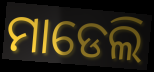
ମାଡେଲି